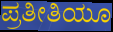
ಪ್ರತೀತಿಯೂ